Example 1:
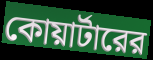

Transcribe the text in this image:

কোয়ার্টারের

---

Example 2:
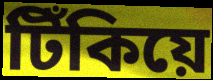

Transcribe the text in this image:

টিঁকিয়ে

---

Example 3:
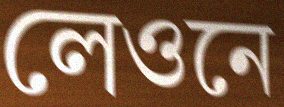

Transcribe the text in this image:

লেওনে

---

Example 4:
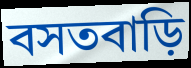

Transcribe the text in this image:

বসতবাড়ি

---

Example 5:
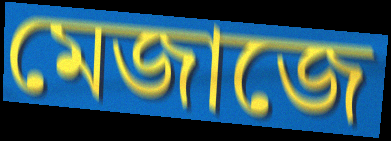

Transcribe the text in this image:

মেজাজে